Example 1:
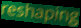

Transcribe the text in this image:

reshaping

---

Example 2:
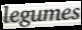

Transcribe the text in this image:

legumes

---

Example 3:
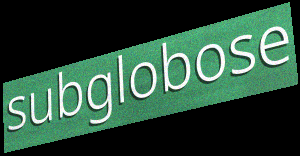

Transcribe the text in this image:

subglobose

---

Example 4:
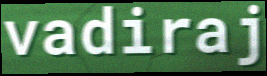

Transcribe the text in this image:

vadiraj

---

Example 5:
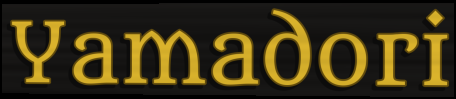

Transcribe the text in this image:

Yamadori